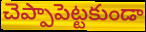
చెప్పాపెట్టకుండా